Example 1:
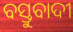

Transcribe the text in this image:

ବସ୍ତୁବାଦୀ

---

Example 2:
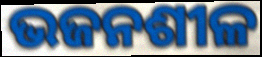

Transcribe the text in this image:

ଭଜନଶୀଳ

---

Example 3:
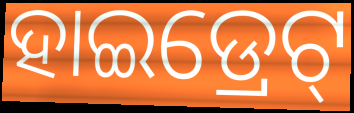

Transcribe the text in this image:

ହାଇଡ୍ରେଟ୍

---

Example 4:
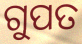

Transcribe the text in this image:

ଗୁପତ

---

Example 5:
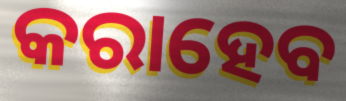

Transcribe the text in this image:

କରାହେବ